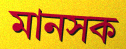
মানসক